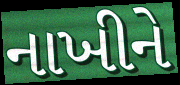
નાખીને